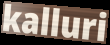
kalluri